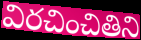
విరచించితిని